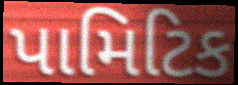
પામિટિક